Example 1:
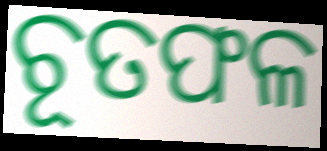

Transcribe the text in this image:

ଚୂତଫଳ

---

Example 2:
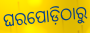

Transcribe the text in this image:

ଘରପୋଡ଼ିଠାରୁ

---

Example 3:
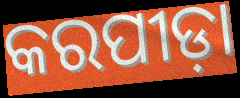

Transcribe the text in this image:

କରପୀଡ଼ା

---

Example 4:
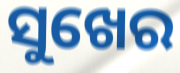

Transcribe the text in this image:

ସୁଖେର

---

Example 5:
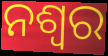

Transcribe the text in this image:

ନଶ୍ଵର